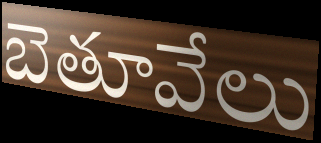
బెతూవేలు